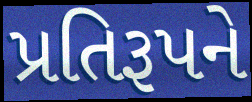
પ્રતિરૂપને